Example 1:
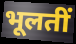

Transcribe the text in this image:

भूलतीं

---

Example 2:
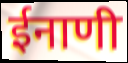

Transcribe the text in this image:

ईनाणी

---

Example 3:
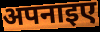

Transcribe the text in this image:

अपनाइए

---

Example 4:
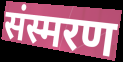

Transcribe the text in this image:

संस्मरण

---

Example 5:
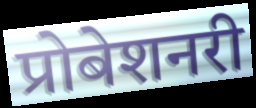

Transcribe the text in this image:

प्रोबेशनरी